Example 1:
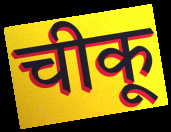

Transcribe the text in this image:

चीकू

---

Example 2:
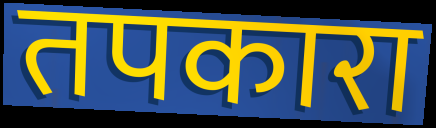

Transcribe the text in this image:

तपकारा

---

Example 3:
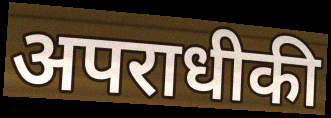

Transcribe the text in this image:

अपराधीकी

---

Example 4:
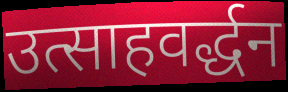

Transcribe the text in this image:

उत्साहवर्द्धन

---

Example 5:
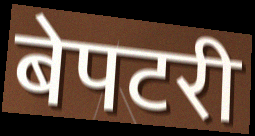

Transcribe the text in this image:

बेपटरी